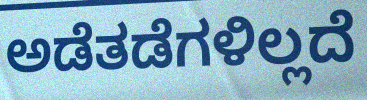
ಅಡೆತಡೆಗಳಿಲ್ಲದೆ